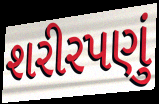
શરીરપણું